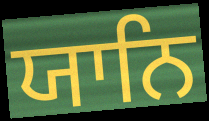
ਯਾਨਿ